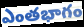
ఎంతభాగం